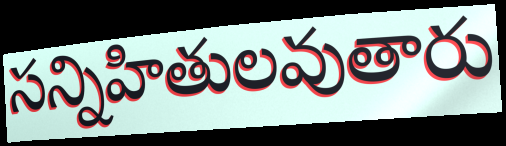
సన్నిహితులవుతారు